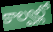
కాల్వల్లో